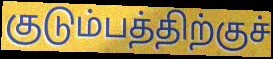
குடும்பத்திற்குச்